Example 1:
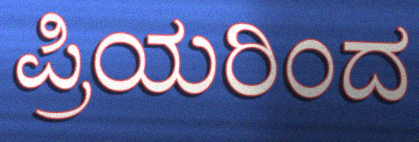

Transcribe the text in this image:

ಪ್ರಿಯರಿಂದ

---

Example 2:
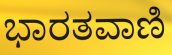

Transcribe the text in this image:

ಭಾರತವಾಣಿ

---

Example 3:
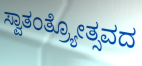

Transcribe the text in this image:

ಸ್ವಾತಂತ್ರ್ಯೋತ್ಸವದ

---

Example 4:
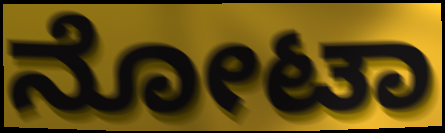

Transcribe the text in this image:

ನೋಟಾ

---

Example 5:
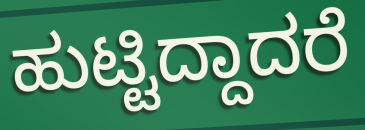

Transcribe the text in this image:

ಹುಟ್ಟಿದ್ದಾದರೆ